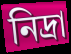
নিদ্রা